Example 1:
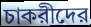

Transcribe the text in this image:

চাকরীদের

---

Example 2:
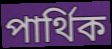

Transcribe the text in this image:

পার্থিক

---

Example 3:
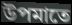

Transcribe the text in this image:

উপমাতে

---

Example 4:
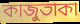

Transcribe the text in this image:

কাজুতাকা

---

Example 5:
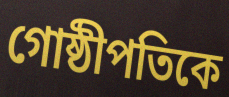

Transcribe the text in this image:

গোষ্ঠীপতিকে